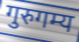
गुरुगम्य